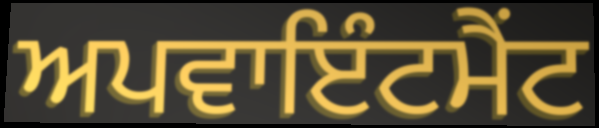
ਅਪਵਾਇੰਟਮੈਂਟ